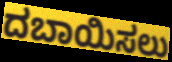
ದಬಾಯಿಸಲು